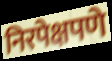
निरपेक्षपणे